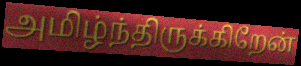
அமிழ்ந்திருக்கிறேன்